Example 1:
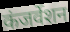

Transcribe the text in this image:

कंजर्वेशन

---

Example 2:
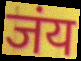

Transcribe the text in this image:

जंय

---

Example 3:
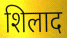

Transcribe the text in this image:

शिलाद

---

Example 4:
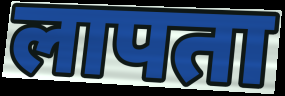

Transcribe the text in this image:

लापता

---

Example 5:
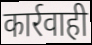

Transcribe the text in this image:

कार्रवाही